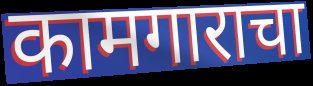
कामगाराचा